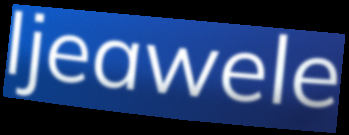
Ijeawele